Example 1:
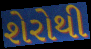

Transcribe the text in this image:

શેરોથી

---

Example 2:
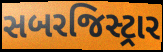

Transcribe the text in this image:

સબરજિસ્ટ્રાર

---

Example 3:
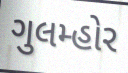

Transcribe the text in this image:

ગુલમ્હોર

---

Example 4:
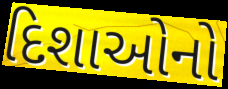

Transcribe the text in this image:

દિશાઓનો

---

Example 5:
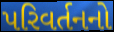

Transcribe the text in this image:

પરિવર્તનનો